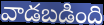
వాడబడింది